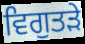
ਵਿਗੁਤੜੇ